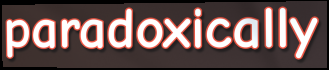
paradoxically